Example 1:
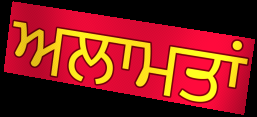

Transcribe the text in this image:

ਅਲਾਮਤਾਂ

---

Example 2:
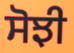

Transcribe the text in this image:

ਸੋਝੀ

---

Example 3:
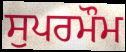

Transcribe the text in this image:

ਸੁਪਰਮੌਮ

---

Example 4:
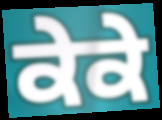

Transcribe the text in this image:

ਕੇਕੇ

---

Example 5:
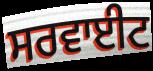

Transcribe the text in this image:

ਸਰਵਾਈਟ